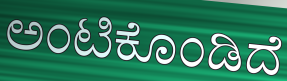
ಅಂಟಿಕೊಂಡಿದೆ